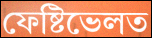
ফেষ্টিভেলত